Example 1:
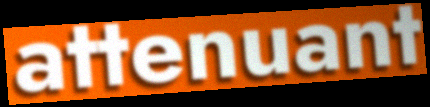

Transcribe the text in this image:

attenuant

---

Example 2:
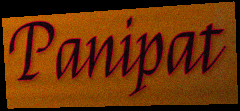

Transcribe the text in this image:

Panipat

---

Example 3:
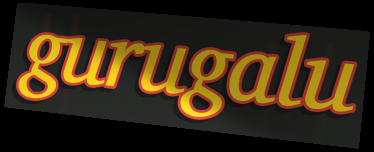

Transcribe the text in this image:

gurugalu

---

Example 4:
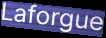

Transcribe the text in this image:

Laforgue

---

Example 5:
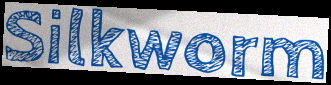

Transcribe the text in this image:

Silkworm